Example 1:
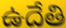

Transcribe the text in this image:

ఉదేతి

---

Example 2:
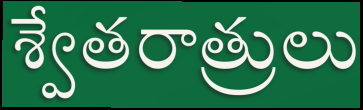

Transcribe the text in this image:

శ్వేతరాత్రులు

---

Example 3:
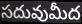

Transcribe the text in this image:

సదువుమీద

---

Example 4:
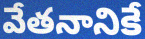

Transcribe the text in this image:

వేతనానికే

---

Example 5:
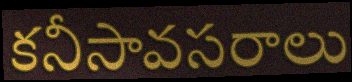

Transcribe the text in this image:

కనీసావసరాలు